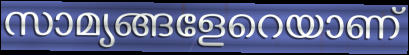
സാമ്യങ്ങളേറെയാണ്